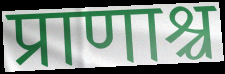
प्राणाश्च